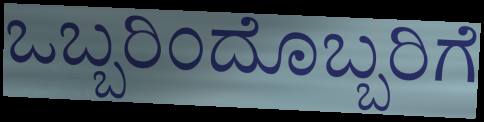
ಒಬ್ಬರಿಂದೊಬ್ಬರಿಗೆ